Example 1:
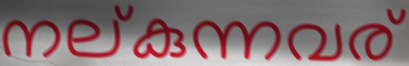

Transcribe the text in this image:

നല്കുന്നവര്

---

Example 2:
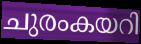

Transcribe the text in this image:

ചുരംകയറി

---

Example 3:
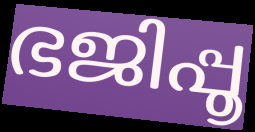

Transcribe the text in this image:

ഭജിപ്പൂ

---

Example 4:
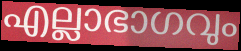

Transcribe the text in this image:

എല്ലാഭാഗവും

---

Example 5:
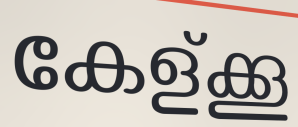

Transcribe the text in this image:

കേള്ക്കൂ